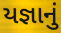
યજ્ઞાનું